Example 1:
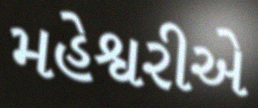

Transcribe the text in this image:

મહેશ્વરીએ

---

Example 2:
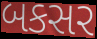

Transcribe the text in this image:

બકસર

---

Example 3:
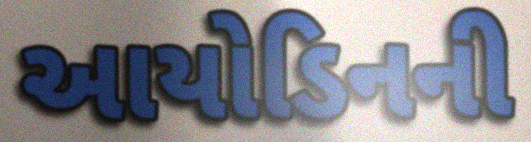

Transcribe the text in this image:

આયોડિનની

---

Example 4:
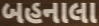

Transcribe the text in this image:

બહનાલા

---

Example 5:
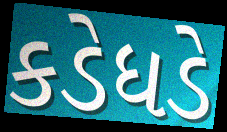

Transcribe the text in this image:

કડેધડે